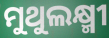
ମୁଥୁଲକ୍ଷ୍ମୀ